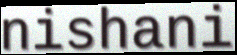
nishani